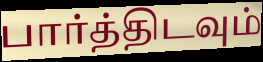
பார்த்திடவும்